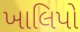
ખાલિપો